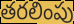
తరలింపు